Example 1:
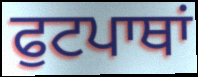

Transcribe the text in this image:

ਫੁਟਪਾਥਾਂ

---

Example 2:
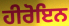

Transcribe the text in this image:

ਹੀਰੋਇਨ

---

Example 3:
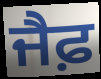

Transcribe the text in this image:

ਜੈਫ਼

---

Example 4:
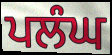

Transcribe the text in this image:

ਪਲੰਘ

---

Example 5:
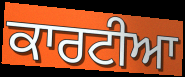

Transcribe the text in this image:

ਕਾਰਟੀਆ